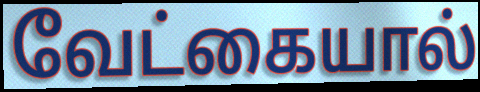
வேட்கையால்